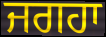
ਜਗਹਾ